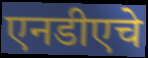
एनडीएचे